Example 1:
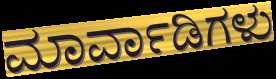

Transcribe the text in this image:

ಮಾರ್ವಾಡಿಗಳು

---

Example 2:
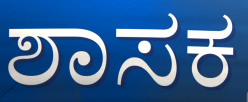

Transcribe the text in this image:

ಶಾಸಕ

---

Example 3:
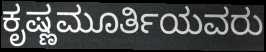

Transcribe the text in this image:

ಕೃಷ್ಣಮೂರ್ತಿಯವರು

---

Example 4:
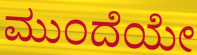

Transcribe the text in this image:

ಮುಂದೆಯೇ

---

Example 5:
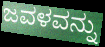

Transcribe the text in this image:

ಜವಳವನ್ನು